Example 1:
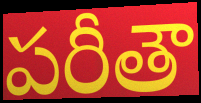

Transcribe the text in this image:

పరీతౌ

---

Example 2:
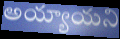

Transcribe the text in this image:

అయ్యాయని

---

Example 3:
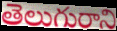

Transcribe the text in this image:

తెలుగురాని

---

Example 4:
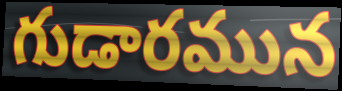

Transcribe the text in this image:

గుడారమున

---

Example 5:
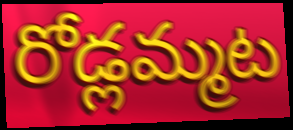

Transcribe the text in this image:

రోడ్లమ్మట